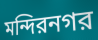
মন্দিরনগর